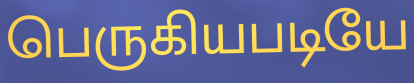
பெருகியபடியே